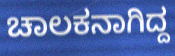
ಚಾಲಕನಾಗಿದ್ದ